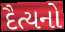
દૈત્યનો